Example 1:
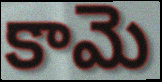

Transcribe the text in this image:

కామె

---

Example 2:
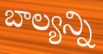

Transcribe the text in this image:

బాల్యన్ని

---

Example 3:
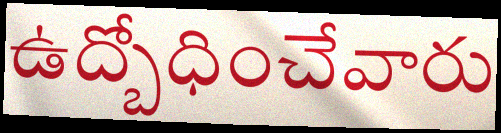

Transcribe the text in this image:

ఉద్బోధించేవారు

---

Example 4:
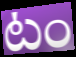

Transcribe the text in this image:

టం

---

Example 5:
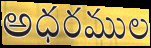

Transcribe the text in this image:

అధరముల